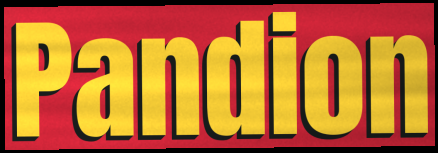
Pandion